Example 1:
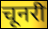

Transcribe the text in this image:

चूनरी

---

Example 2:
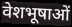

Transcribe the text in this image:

वेशभूषाओं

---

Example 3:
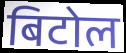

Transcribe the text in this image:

बिटोल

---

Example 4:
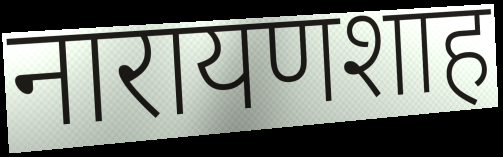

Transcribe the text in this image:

नारायणशाह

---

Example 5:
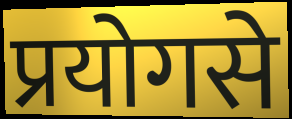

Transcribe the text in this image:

प्रयोगसे